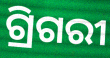
ଗ୍ରିଗରୀ